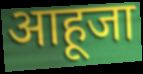
आहूजा